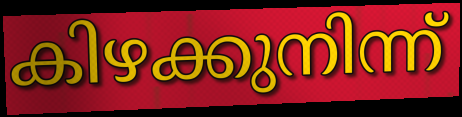
കിഴക്കുനിന്ന്